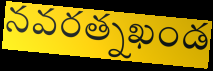
నవరత్నఖండ